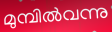
മുമ്പിൽവന്നു